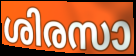
ശിരസാ